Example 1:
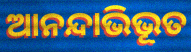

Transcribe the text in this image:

ଆନନ୍ଦାଭିଭୂତ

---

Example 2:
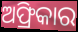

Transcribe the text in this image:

ଅଫ୍ରିକାର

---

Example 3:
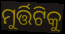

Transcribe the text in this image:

ମୁର୍ତ୍ତିଟିକୁ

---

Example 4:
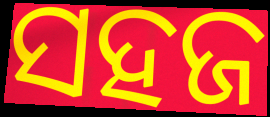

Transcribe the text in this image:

ସହଜ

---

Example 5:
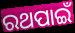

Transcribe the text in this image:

ରଥପାଇଁ